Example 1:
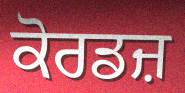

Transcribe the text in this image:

ਕੋਰਡਜ਼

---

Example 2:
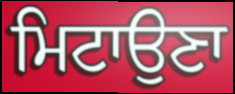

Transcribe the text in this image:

ਮਿਟਾਉਣਾ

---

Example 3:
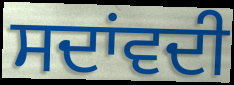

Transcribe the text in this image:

ਸਦਾਂਵਦੀ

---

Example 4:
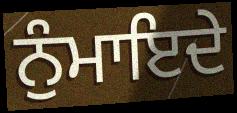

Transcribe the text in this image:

ਨੁੰਮਾਇਦੇ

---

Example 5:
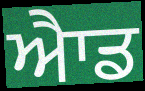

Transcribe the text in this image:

ਐਾਡ